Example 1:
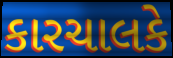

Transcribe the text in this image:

કારચાલકે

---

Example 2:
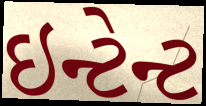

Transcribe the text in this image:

ઇન્ટેન્ટ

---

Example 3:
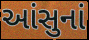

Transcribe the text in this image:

આંસુનાં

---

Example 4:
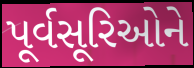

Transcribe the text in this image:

પૂર્વસૂરિઓને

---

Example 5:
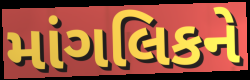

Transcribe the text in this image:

માંગલિકને